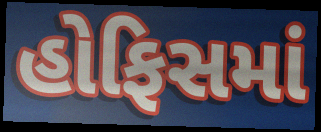
હોફિસમાં